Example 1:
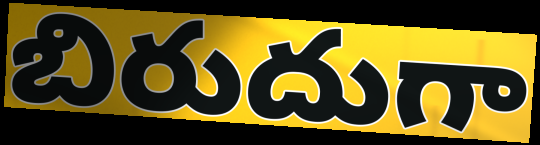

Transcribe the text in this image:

బిరుదుగా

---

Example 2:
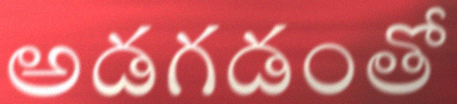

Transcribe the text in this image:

అడగడంతో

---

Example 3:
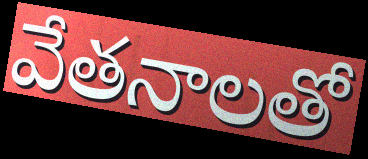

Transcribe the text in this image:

వేతనాలతో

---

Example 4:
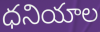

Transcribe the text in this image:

ధనియాల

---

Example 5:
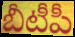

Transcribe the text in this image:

బీటీపీ